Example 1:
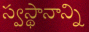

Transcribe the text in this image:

స్వస్థానాన్ని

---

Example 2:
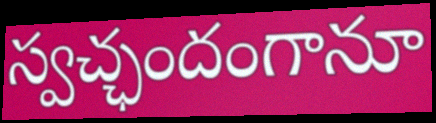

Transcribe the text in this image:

స్వచ్ఛందంగానూ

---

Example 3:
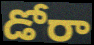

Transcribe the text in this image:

డోరా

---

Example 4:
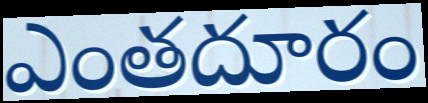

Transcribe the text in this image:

ఎంతదూరం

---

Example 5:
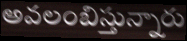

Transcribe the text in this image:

అవలంబిస్తున్నారు